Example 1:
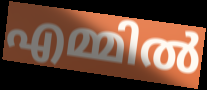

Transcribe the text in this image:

എമ്മിൽ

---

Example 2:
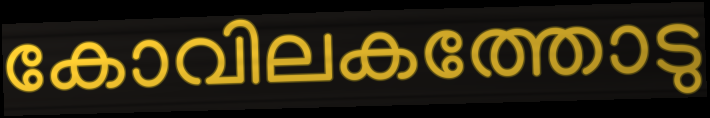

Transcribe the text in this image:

കോവിലകത്തോടു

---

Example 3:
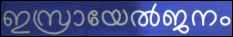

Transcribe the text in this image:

ഇസ്രായേൽജനം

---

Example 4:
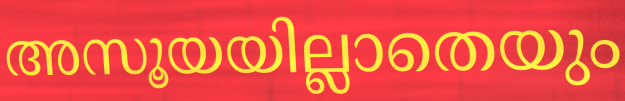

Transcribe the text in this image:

അസൂയയില്ലാതെയും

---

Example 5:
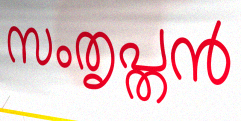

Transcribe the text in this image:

സംതൃപ്തൻ